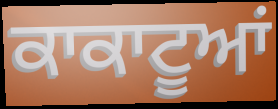
ਕਾਕਾਟੂਆਂ